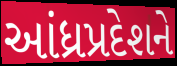
આંધ્રપ્રદેશને